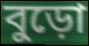
বুড়ো